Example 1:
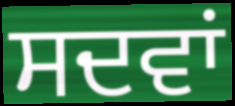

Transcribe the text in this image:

ਸਦਵਾਂ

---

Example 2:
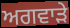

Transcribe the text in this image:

ਅਗਵਾੜੇ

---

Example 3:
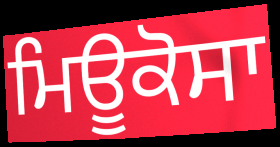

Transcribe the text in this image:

ਮਿਊਕੋਸਾ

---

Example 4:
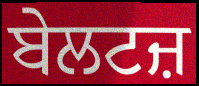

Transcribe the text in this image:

ਬੇਲਟਜ਼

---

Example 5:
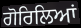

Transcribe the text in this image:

ਗੋਰਿਲਿਆਂ